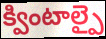
క్వింటాల్పై